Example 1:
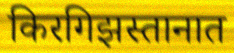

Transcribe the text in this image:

किरगिझस्तानात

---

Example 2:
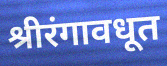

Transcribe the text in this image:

श्रीरंगावधूत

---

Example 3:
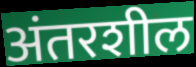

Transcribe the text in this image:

अंतरशील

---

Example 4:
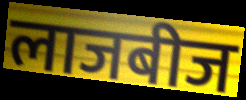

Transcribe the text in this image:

लाजबीज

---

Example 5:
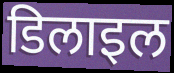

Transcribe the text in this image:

डिलाइल